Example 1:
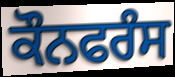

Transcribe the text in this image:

ਕੌਨਫਰੰਸ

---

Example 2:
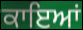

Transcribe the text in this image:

ਕਾਇਆਂ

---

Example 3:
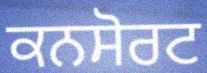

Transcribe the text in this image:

ਕਨਸੋਰਟ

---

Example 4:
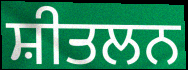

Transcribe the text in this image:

ਸ਼ੀਤਲਨ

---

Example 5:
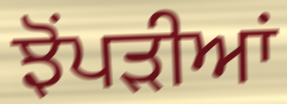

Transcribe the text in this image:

ਝੋਂਪੜੀਆਂ